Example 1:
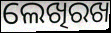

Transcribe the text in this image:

ଲେଖିରଖ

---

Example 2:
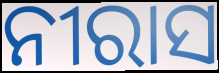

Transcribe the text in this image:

ନୀରାସ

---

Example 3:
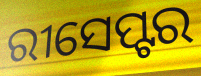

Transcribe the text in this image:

ରୀସେପ୍ଟର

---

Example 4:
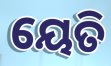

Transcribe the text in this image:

ୟେତି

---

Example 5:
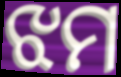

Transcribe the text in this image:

ଝମ